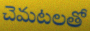
చెమటలతో